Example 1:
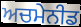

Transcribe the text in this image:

ਅਚਮੇਨੀਡ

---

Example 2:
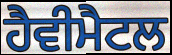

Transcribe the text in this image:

ਹੈਵੀਮੈਟਲ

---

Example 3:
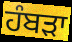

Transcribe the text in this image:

ਹੰਬੜਾ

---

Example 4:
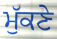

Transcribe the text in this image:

ਮੁੱਕਣੇ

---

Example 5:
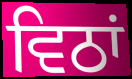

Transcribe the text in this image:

ਵਿਠਾਂ